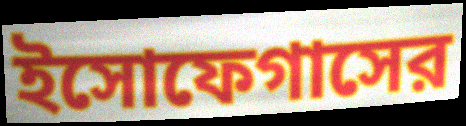
ইসোফেগাসের